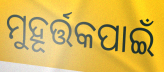
ମୁହୂର୍ତ୍ତକପାଇଁ